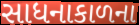
સાધનાકાળના